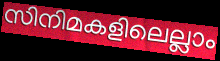
സിനിമകളിലെല്ലാം